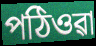
পঠিওৱা